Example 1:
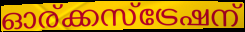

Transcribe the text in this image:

ഓര്ക്കസ്ട്രേഷന്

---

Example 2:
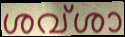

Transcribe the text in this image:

ശവ്ശാ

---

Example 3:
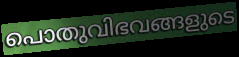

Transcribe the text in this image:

പൊതുവിഭവങ്ങളുടെ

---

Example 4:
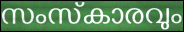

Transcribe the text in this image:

സംസ്‌കാരവും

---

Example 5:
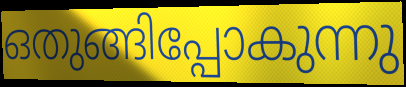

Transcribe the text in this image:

ഒതുങ്ങിപ്പോകുന്നു